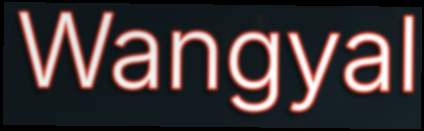
Wangyal